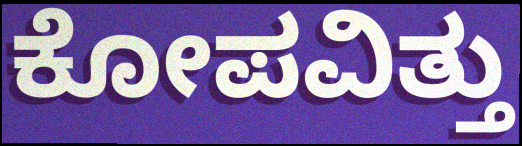
ಕೋಪವಿತ್ತು